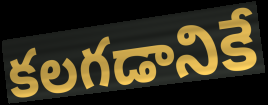
కలగడానికే